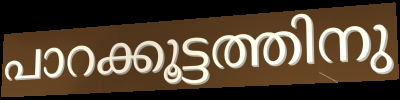
പാറക്കൂട്ടത്തിനു